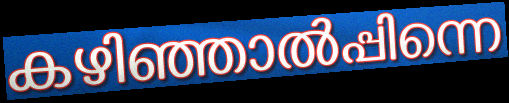
കഴിഞ്ഞാൽപ്പിന്നെ